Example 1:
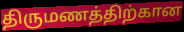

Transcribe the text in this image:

திருமணத்திற்கான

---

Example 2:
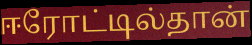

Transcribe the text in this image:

ஈரோட்டில்தான்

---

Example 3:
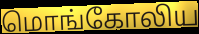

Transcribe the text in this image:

மொங்கோலிய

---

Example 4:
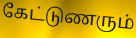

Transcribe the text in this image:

கேட்டுணரும்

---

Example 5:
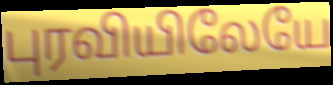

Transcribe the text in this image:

புரவியிலேயே